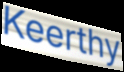
Keerthy